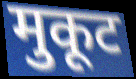
मुकूट